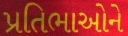
પ્રતિભાઓને